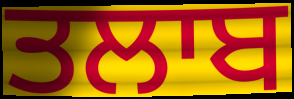
ਤਲਾਬ